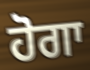
ਹੋਗਾ